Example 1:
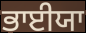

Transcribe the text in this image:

ਭਾਈਯਾ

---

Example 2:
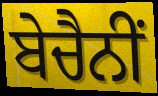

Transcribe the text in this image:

ਬੇਚੈਨੀਂ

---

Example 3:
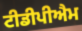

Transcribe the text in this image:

ਟੀਡੀਪੀਐਮ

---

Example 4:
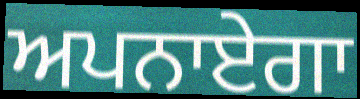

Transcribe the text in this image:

ਅਪਨਾਏਗਾ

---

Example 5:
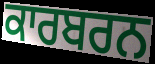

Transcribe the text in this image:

ਕਾਰਬਰਨ